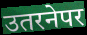
उतरनेपर